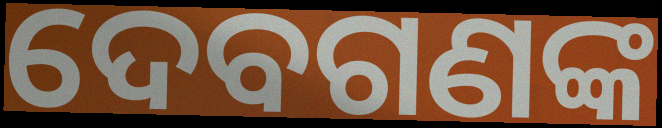
ଦେବଗଣଙ୍କ